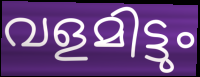
വളമിട്ടും